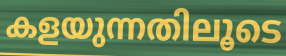
കളയുന്നതിലൂടെ